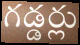
గడ్డర్లు